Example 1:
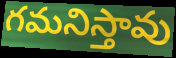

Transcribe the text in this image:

గమనిస్తావు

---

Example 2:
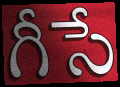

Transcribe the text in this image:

గీసే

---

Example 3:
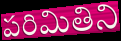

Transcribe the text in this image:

పరిమితిని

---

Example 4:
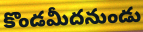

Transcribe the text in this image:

కొండమీదనుండు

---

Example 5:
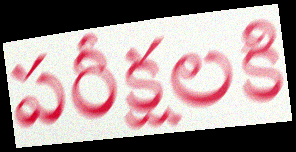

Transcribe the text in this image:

పరీక్షలకి